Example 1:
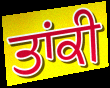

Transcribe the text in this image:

ਤਾਂਕੀ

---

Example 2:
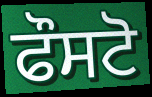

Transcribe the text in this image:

ਫੌਸਟੋ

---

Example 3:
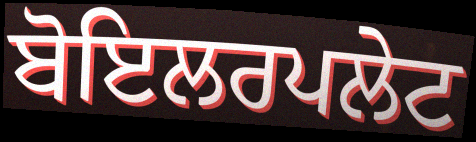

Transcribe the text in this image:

ਬੋਇਲਰਪਲੇਟ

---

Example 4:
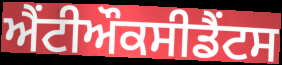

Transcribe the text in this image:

ਐਂਟੀਔਕਸੀਡੈਂਟਸ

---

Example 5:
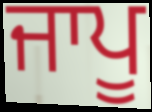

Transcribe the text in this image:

ਜਾਪੂ